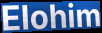
Elohim